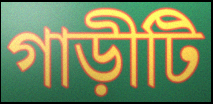
গাড়ীটি